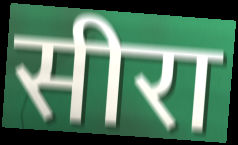
सीरा